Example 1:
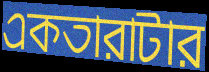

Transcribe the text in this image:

একতারাটার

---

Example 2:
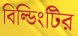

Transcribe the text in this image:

বিল্ডিংটির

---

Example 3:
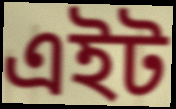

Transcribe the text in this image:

এইট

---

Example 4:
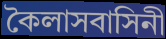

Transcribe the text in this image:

কৈলাসবাসিনী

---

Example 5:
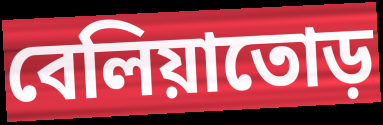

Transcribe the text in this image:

বেলিয়াতোড়